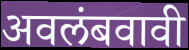
अवलंबवावी